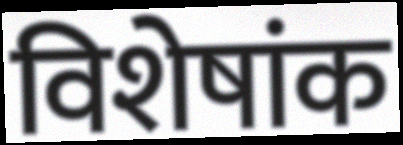
विशेषांक